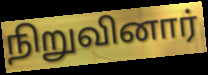
நிறுவினார்